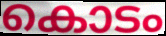
കൊടം